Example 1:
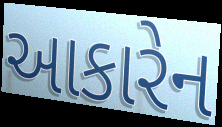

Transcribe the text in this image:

આકારેન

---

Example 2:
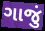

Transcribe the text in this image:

ગાજું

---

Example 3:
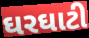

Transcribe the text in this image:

ઘરઘાટી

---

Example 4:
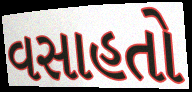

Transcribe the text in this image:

વસાહતો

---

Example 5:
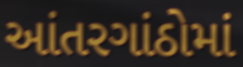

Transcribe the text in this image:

આંતરગાંઠોમાં